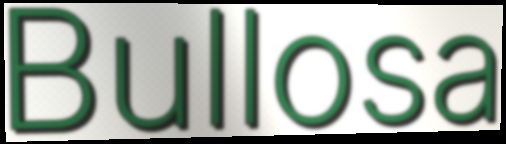
Bullosa